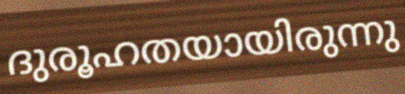
ദുരൂഹതയായിരുന്നു